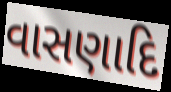
વાસણાદિ